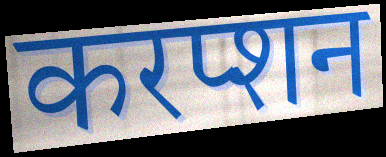
करप्शन